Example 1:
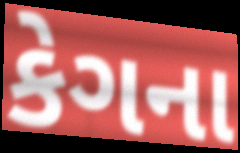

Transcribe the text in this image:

કેગના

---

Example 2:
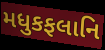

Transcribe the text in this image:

મધુકફલાનિ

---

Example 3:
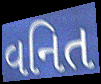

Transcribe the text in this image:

વનિત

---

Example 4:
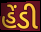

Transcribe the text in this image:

હેંડી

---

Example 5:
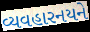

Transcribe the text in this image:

વ્યવહારનયને